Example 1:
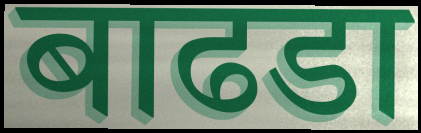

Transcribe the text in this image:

बाढडा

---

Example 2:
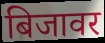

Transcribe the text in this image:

बिजावर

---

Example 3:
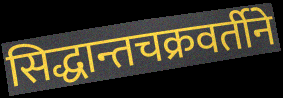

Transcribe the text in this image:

सिद्धान्तचक्रवर्तीने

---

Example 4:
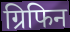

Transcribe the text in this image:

ग्रिफिन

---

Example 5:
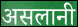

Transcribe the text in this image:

असलानी